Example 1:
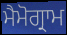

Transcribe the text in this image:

ਮੈਮੋਗ੍ਰਾਮ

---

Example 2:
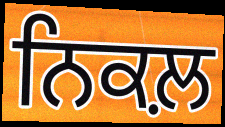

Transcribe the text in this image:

ਨਿਕਲ਼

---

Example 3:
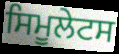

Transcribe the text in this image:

ਸਿਮੂਲੇਟਸ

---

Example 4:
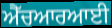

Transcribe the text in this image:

ਐੱਚਆਰਆਈ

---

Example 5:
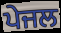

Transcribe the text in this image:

ਪੇਜਲ